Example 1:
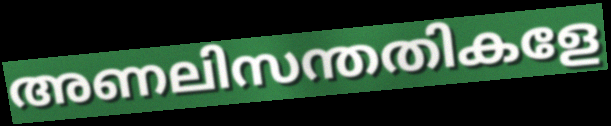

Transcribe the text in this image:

അണലിസന്തതികളേ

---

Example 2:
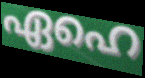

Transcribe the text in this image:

ഏഹെ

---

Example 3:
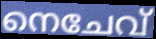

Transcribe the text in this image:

നെചേവ്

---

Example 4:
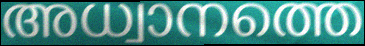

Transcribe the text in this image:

അധ്വാനത്തെ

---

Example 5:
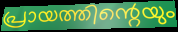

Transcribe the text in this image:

പ്രായത്തിന്റെയും